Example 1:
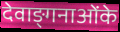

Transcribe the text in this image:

देवाङ्गनाओंके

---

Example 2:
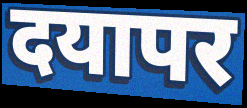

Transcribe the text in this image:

दयापर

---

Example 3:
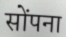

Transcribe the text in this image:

सोंपना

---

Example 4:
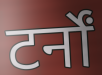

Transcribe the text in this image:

टर्नों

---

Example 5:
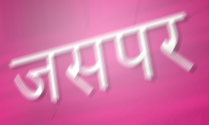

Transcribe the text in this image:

जसपर